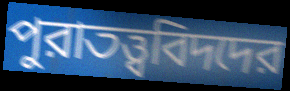
পুরাতত্ত্ববিদদের